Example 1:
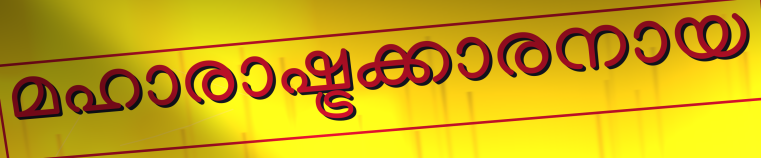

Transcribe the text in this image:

മഹാരാഷ്ട്രക്കാരനായ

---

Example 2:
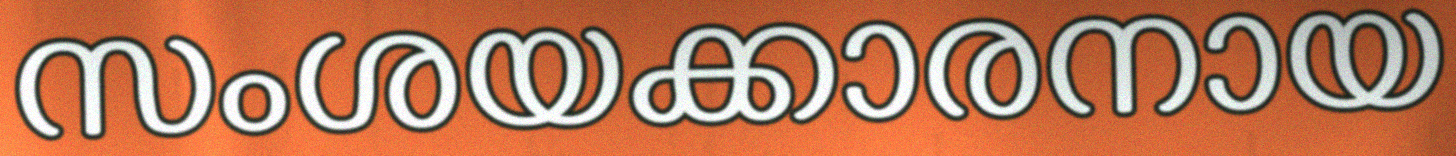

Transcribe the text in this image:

സംശയക്കാരനായ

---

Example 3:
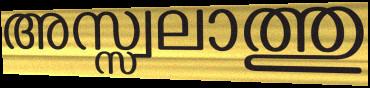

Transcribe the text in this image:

അസ്സ്വലാത്തു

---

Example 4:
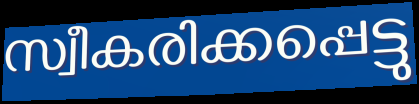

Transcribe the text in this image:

സ്വീകരിക്കപ്പെട്ടു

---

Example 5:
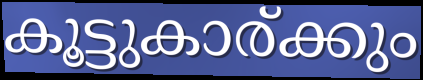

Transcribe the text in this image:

കൂട്ടുകാര്ക്കും